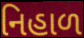
નિહાળ